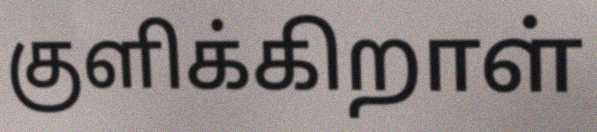
குளிக்கிறாள்